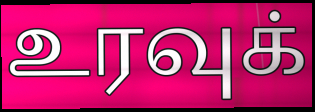
உரவுக்